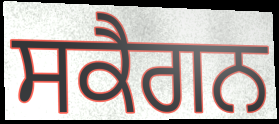
ਸਕੈਗਨ